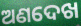
ଅଣଦେଖ